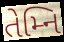
તેમ્નિ